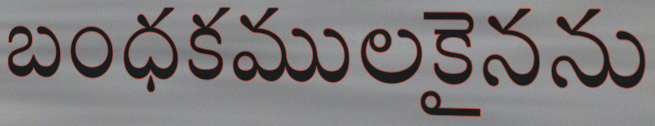
బంధకములకైనను